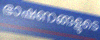
ഭാഷണങ്ങളുടെ